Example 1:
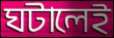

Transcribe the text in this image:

ঘটালেই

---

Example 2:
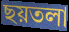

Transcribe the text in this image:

ছয়তলা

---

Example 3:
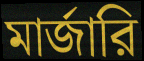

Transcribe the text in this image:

মার্জারি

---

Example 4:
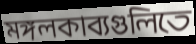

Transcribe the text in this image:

মঙ্গলকাব্যগুলিতে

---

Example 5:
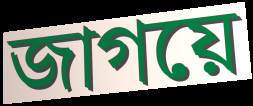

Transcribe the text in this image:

জাগয়ে